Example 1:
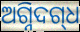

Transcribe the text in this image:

ଅଗ୍ନିଦଗ୍‌ଧ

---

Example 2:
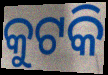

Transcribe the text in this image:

କୁଟକି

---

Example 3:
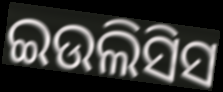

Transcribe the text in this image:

ଇଉଲିସିସ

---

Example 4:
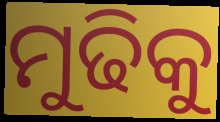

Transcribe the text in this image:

ମୁଢିକୁ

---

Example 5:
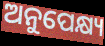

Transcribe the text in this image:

ଅନୁପେକ୍ଷ୍ୟ